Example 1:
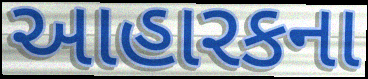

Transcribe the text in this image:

આહારકના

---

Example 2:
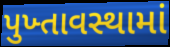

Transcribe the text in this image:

પુખ્તાવસ્થામાં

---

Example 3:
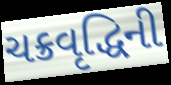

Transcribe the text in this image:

ચક્રવૃદ્ધિની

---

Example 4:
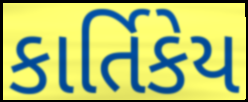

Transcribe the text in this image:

કાર્તિકેય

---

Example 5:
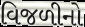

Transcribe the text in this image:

વિજળીનો